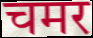
चमर